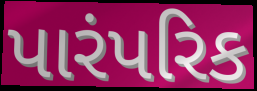
પારંપરિક